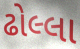
ઢોલ્લા